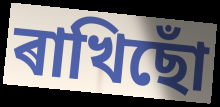
ৰাখিছোঁ